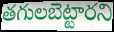
తగులబెట్టారని